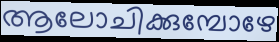
ആലോചിക്കുമ്പോഴേ